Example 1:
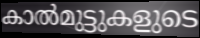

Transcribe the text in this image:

കാൽമുട്ടുകളുടെ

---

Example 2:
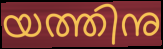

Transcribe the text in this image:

യത്തിനു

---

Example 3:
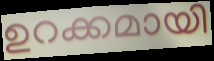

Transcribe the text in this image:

ഉറക്കമായി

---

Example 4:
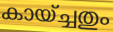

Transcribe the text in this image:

കായ്ച്ചതും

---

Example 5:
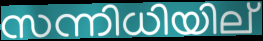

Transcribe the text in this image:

സന്നിധിയില്